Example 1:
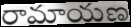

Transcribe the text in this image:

రామాయణ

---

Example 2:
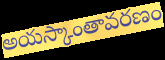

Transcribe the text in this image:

అయస్కాంతావరణం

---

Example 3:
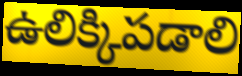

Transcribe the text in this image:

ఉలిక్కిపడాలి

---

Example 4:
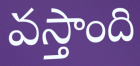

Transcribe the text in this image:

వస్తాంది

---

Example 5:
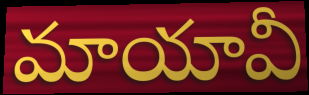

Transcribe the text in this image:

మాయావీ